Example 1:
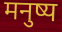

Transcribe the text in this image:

मनुष्य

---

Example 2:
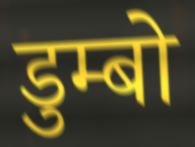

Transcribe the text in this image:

डुम्बो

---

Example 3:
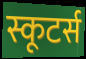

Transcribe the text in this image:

स्कूटर्स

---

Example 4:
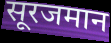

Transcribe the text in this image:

सूरजमान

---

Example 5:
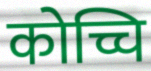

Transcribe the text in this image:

कोच्चि